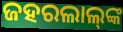
ଜହରଲାଲ୍‌ଙ୍କ